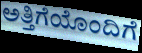
ಅತ್ತಿಗೆಯೊಂದಿಗೆ